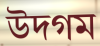
উদগম